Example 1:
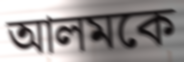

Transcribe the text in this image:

আলমকে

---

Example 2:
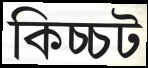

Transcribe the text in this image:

কিচ্চট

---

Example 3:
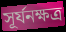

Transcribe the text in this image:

সূর্যনক্ষত্র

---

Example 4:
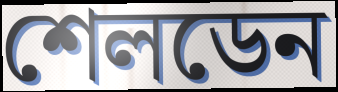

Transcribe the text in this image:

শেলডেন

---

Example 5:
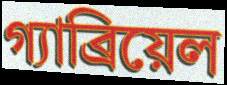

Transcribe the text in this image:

গ্যাব্রিয়েল